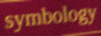
symbology